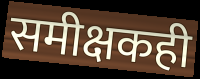
समीक्षकही